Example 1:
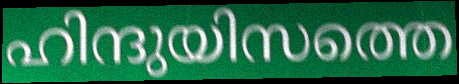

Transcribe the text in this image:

ഹിന്ദുയിസത്തെ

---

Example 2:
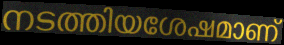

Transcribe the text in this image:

നടത്തിയശേഷമാണ്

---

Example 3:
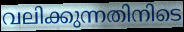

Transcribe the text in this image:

വലിക്കുന്നതിനിടെ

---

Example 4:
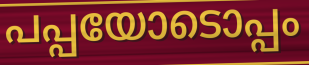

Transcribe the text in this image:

പപ്പയോടൊപ്പം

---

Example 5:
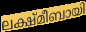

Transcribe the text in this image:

ലക്ഷ്മീബായി